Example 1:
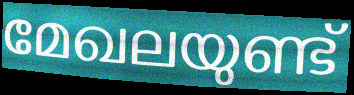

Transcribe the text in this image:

മേഖലയുണ്ട്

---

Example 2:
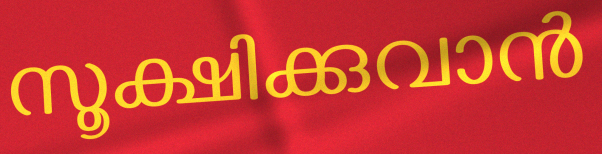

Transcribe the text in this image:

സൂക്ഷിക്കുവാൻ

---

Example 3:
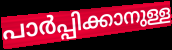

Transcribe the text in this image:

പാർപ്പിക്കാനുള്ള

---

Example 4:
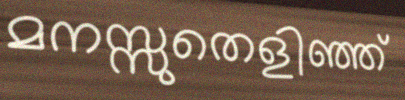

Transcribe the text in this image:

മനസ്സുതെളിഞ്ഞ്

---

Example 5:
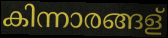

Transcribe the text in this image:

കിന്നാരങ്ങള്